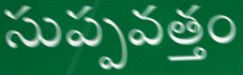
సుప్పవత్తం